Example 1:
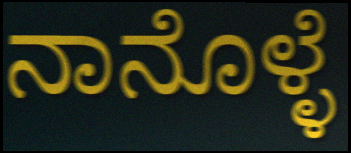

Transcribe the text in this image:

ನಾನೊಳ್ಳೆ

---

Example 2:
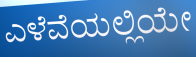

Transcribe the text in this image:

ಎಳೆವೆಯಲ್ಲಿಯೇ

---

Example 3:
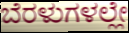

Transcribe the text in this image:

ಬೆರಳುಗಳಲ್ಲೇ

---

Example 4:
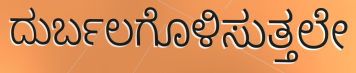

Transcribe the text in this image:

ದುರ್ಬಲಗೊಳಿಸುತ್ತಲೇ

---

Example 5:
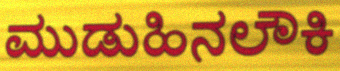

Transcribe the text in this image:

ಮುಡುಹಿನಲೌಕಿ